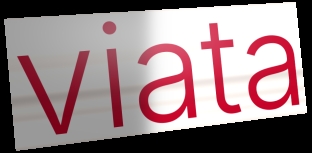
viata